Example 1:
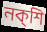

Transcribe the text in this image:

নক্‌শি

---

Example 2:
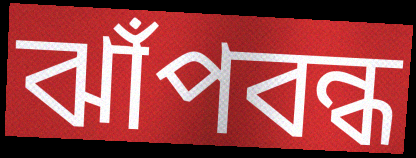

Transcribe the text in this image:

ঝাঁপবন্ধ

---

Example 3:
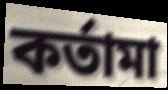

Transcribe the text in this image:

কর্তামা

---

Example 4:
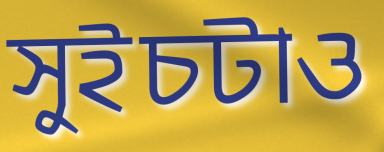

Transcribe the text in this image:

সুইচটাও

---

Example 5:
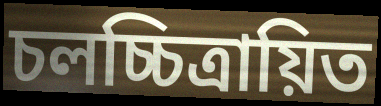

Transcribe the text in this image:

চলচ্চিত্রায়িত